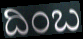
ದಿಂಬ